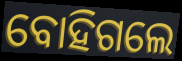
ବୋହିଗଲେ